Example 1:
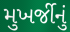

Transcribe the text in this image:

મુખર્જીનું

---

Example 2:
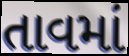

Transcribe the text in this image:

તાવમાં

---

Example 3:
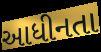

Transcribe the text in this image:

આધીનતા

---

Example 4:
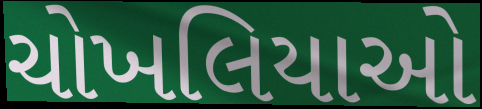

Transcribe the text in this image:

ચોખલિયાઓ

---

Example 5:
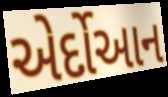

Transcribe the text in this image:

એર્દોઆન